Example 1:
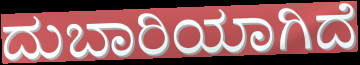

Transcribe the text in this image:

ದುಬಾರಿಯಾಗಿದೆ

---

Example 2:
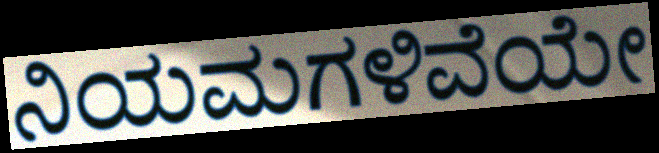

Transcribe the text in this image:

ನಿಯಮಗಳಿವೆಯೇ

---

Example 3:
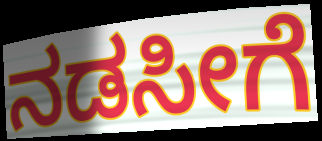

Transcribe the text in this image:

ನಡಸೀಗೆ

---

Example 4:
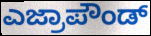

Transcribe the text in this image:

ಎಜ್ರಾಪೌಂಡ್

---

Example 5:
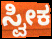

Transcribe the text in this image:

ಸ್ವೀಕ